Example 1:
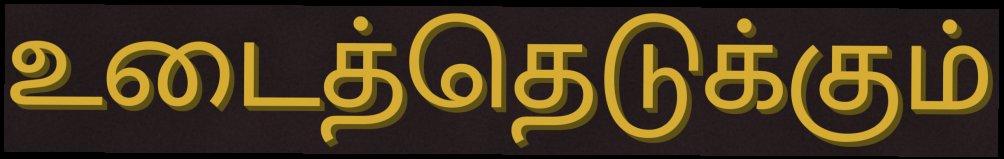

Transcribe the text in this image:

உடைத்தெடுக்கும்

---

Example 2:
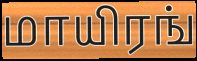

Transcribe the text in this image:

மாயிரங்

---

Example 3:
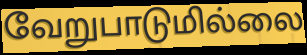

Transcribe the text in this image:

வேறுபாடுமில்லை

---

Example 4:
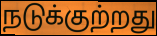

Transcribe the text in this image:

நடுக்குற்றது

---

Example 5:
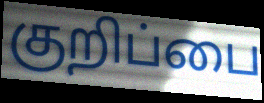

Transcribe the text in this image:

குறிப்பை